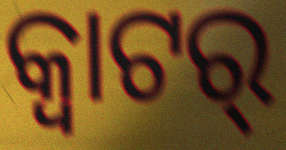
କ୍ୱାଟର୍